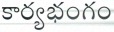
కార్యభంగం